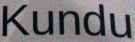
Kundu